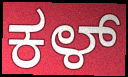
ಕಳ್